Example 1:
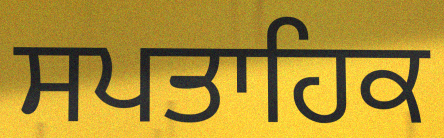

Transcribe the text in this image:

ਸਪਤਾਹਿਕ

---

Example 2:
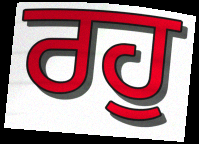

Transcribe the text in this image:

ਰਹੁ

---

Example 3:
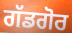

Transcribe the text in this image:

ਗੱਡਗੋਰ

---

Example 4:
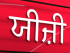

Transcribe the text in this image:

ਯੀਜ਼ੀ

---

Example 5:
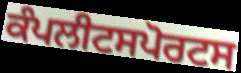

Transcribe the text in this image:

ਕੰਪਲੀਟਸਪੋਰਟਸ